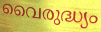
വൈരുദ്ധ്യം